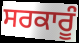
ਸਰਕਾਰੂੰ